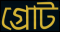
গ্রোট